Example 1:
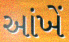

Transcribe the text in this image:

આંખેં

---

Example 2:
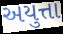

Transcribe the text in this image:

અયુત્તા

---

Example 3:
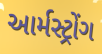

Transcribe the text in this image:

આર્મસ્ટ્રોંગ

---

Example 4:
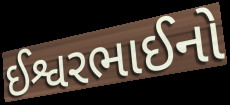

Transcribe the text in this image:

ઈશ્વરભાઈનો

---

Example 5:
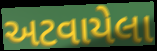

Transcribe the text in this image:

અટવાયેલા